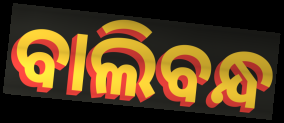
ବାଲିବନ୍ଧ